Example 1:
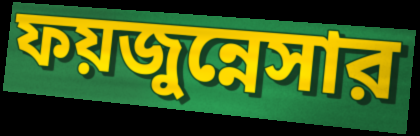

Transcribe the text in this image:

ফয়জুন্নেসার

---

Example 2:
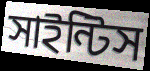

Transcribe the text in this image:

সাইন্টিস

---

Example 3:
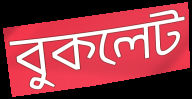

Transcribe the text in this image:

বুকলেট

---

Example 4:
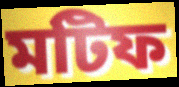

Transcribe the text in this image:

মটিফ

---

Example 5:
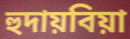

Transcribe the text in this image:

হুদায়বিয়া